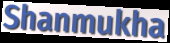
Shanmukha